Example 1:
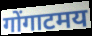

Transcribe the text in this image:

गोंगाटमय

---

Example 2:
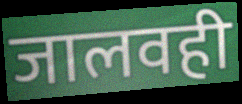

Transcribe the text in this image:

जालवही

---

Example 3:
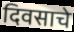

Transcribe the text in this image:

दिवसाचे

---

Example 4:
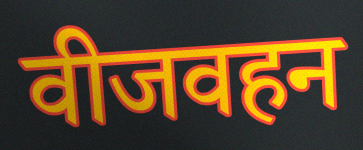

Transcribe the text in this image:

वीजवहन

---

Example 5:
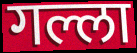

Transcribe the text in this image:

गल्ला